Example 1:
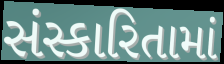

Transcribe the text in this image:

સંસ્કારિતામાં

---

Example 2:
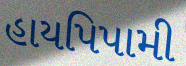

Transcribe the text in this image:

હાયપિપામી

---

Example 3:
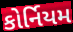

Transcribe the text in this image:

કોર્નિયમ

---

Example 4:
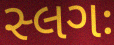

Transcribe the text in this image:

સ્લગઃ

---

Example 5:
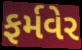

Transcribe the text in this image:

ફર્મવેર